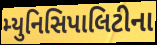
મ્યુનિસિપાલિટીના